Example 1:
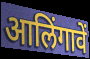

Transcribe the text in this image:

आलिंगावें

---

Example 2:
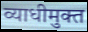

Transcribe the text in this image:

व्याधीमुक्त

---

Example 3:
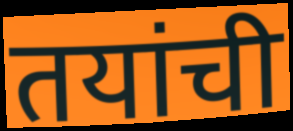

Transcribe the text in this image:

तयांची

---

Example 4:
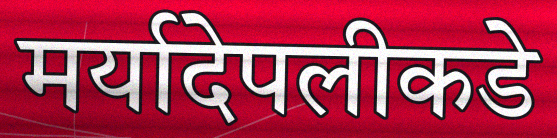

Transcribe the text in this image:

मर्यादेपलीकडे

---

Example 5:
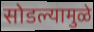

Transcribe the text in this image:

सोडल्यामुळे